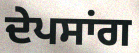
ਦੇਪਸਾਂਗ